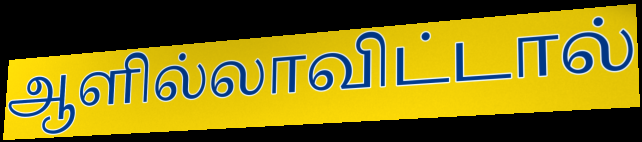
ஆளில்லாவிட்டால்